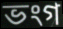
ভংগ